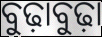
ବୁଢ଼ାବୁଢ଼ା